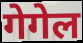
गेगेल